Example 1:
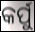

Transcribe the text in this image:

କର୍ପୁ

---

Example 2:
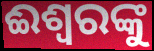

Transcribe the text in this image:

ଈଶ୍ଵରଙ୍କୁ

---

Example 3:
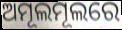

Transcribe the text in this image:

ଅମୂଲମୂଲରେ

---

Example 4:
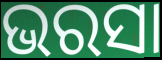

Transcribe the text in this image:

ଭରସା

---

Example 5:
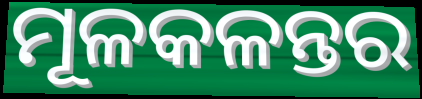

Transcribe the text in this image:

ମୂଳକଳନ୍ତର